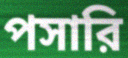
পসারি